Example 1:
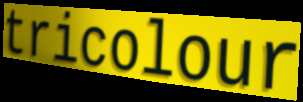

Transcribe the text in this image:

tricolour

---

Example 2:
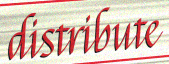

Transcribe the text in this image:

distribute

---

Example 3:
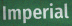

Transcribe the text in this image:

Imperial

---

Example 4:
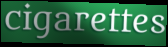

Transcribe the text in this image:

cigarettes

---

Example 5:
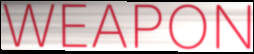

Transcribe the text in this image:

WEAPON